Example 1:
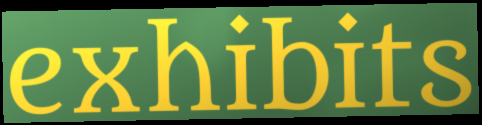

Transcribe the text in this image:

exhibits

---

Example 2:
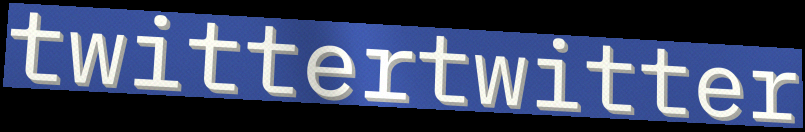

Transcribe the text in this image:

twittertwitter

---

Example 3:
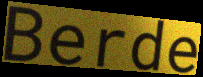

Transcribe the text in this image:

Berde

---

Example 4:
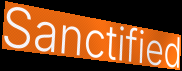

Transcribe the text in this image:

Sanctified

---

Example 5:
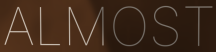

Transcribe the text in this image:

ALMOST